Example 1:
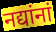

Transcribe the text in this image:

नद्यांनां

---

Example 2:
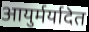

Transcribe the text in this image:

आयुर्मर्यादेत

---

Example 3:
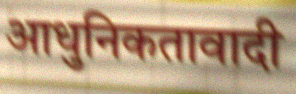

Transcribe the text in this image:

आधुनिकतावादी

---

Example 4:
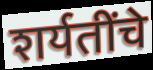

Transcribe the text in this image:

शर्यतींचे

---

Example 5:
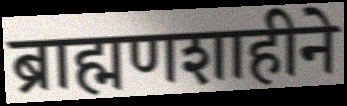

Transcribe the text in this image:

ब्राह्मणशाहीने